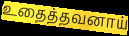
உதைத்தவனாய்